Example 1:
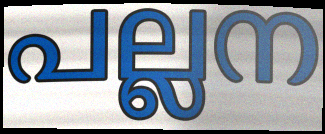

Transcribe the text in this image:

പല്ലന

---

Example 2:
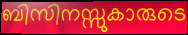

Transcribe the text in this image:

ബിസിനസ്സുകാരുടെ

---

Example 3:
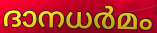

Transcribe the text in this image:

ദാനധർമം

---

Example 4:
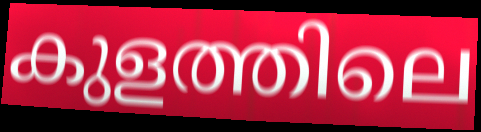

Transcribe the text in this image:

കുളത്തിലെ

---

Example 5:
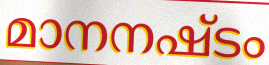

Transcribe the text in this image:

മാനനഷ്ടം